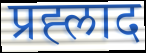
प्रह्लाद